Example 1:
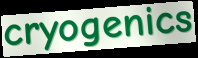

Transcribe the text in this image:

cryogenics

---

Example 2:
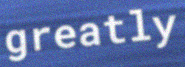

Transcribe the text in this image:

greatly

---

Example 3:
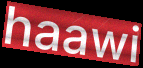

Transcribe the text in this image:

haawi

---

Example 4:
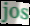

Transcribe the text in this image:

jos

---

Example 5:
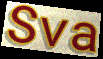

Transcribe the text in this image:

Sva